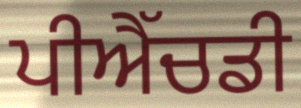
ਪੀਐੱਚਡੀ